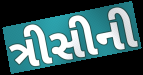
ત્રીસીની